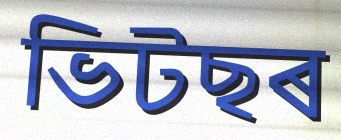
ভিটছৰ